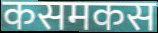
कसमकस